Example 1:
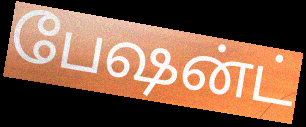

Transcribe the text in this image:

பேஷன்ட்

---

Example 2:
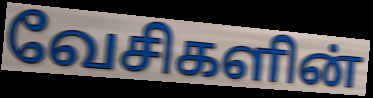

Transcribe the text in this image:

வேசிகளின்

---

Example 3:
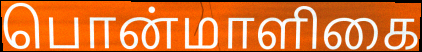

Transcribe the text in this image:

பொன்மாளிகை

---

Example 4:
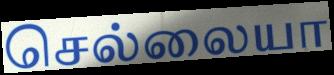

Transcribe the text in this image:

செல்லையா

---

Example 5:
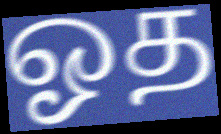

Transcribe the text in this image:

ஓத